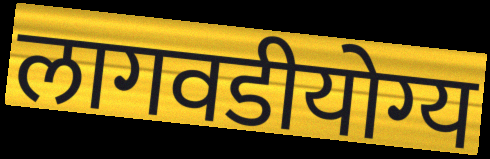
लागवडीयोग्य